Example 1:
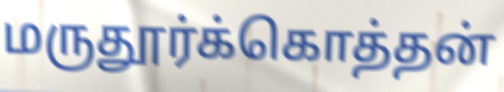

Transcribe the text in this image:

மருதூர்க்கொத்தன்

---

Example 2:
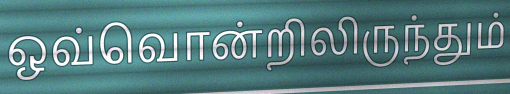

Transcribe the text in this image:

ஒவ்வொன்றிலிருந்தும்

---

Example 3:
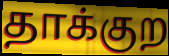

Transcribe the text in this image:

தாக்குற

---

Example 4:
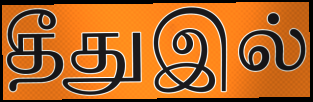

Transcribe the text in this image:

தீதுஇல்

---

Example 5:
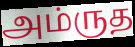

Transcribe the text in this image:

அம்ருத